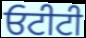
ਓਟੀਟੀ